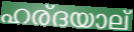
ഹര്ദയാല്